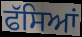
ਫੱਸਿਆਂ